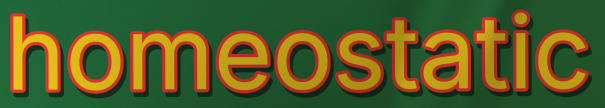
homeostatic